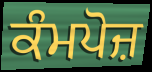
ਕੰਮਪੋਜ਼